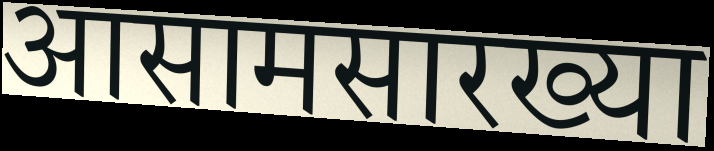
आसामसारख्या